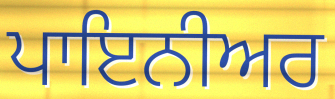
ਪਾਇਨੀਅਰ